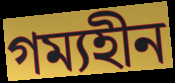
গম্যহীন